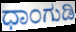
ಧಾಂಗುಡಿ